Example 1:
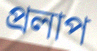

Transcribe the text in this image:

প্রলাপ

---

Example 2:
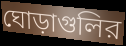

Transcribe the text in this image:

ঘোড়াগুলির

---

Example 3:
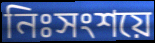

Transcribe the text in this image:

নিঃসংশয়ে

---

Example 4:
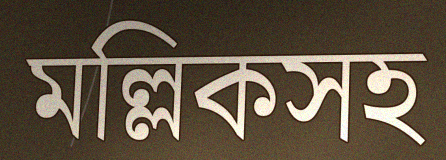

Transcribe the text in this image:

মল্লিকসহ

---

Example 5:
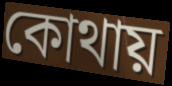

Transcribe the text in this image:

কোথায়